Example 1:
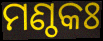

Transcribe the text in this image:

ମଣ୍ଠକଃ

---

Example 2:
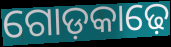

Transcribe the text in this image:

ଗୋଡ଼କାଢ଼େ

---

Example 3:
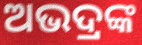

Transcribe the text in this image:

ଅଭଦ୍ରଙ୍କ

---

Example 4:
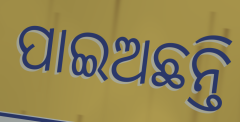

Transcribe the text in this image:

ପାଇଅଛନ୍ତି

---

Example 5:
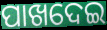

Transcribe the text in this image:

ପାଖଦେଇ